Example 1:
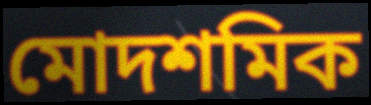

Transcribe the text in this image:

মোদশমিক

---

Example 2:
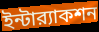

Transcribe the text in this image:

ইন্টার‍্যাকশন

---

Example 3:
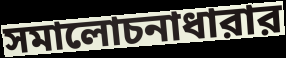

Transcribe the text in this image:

সমালোচনাধারার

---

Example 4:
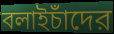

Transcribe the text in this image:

বলাইচাঁদের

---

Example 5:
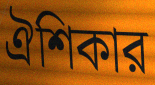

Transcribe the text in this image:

ঐশিকার